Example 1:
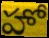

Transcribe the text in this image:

హో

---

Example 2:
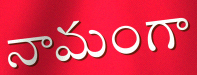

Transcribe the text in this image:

నామంగా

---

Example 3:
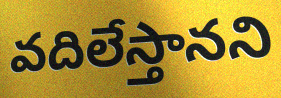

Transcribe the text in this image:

వదిలేస్తానని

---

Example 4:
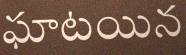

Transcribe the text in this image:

ఘాటయిన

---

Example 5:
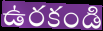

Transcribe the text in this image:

ఉరకండి